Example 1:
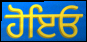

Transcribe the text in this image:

ਹੋਇਓ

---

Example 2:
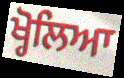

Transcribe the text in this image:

ਖ੍ਹੋਲਿਆ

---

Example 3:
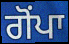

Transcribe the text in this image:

ਗੋਂਪਾ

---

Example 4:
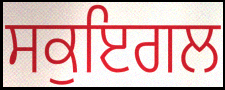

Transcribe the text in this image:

ਸਕੁਇਗਲ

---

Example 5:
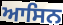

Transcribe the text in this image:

ਆਸਿਨ